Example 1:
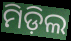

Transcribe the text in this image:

ମିଡ଼ିଲ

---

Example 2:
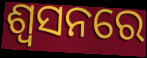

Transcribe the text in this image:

ଶ୍ଵସନରେ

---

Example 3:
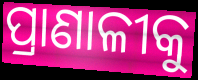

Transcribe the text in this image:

ପ୍ରାଣାଳୀକୁ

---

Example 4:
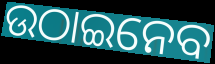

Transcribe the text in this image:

ଉଠାଇନେବ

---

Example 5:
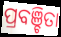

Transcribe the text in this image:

ପ୍ରବଞ୍ଚିତା